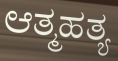
ಆತ್ಮಹತ್ಯ